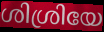
ശിശ്രിയേ